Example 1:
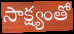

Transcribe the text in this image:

సాక్ష్యంతో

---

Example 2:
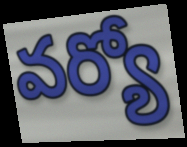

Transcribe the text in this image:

వర్యో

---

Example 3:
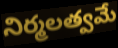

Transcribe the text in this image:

నిర్మలత్వమే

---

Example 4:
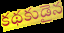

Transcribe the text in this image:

కథకుడైన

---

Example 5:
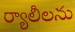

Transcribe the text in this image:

ర్యాలీలను